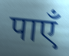
पाएँ